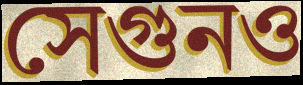
সেগুনও